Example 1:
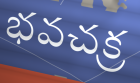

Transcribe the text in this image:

భవచక్ర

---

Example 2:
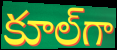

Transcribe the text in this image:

కూల్‌గా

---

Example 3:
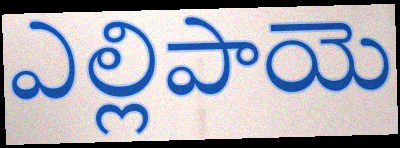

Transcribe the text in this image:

ఎల్లిపాయె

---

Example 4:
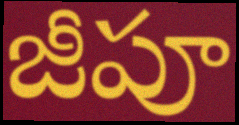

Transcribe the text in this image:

జీపూ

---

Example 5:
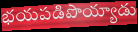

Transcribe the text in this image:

భయపడిపొయ్యాడు